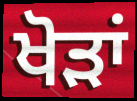
ਖੋੜਾਂ